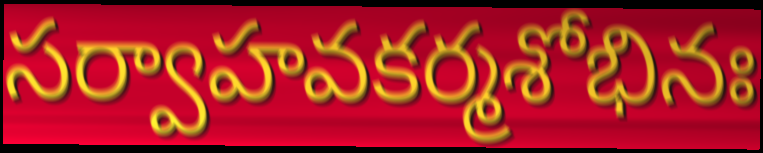
సర్వాహవకర్మశోభినః